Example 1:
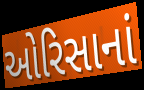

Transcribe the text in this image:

ઓરિસાનાં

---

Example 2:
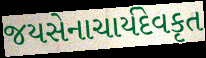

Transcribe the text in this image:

જયસેનાચાર્યદેવકૃત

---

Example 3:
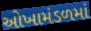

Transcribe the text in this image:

ઓખામંડળમાં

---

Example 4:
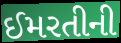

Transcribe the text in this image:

ઈમરતીની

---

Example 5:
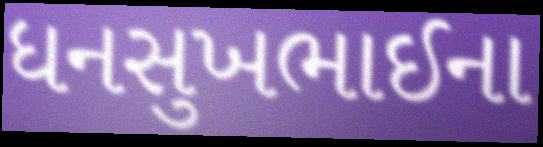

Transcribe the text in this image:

ધનસુખભાઈના